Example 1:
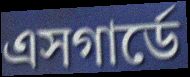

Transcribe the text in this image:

এসগার্ডে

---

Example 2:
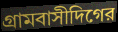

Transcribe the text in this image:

গ্রামবাসীদিগের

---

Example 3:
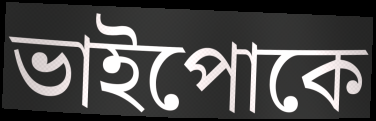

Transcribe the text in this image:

ভাইপোকে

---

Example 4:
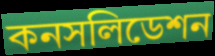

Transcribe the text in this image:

কনসলিডেশন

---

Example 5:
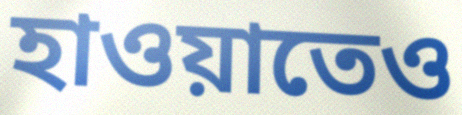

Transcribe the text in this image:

হাওয়াতেও